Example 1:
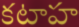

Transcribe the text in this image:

కటాహ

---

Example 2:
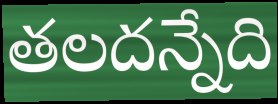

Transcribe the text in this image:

తలదన్నేది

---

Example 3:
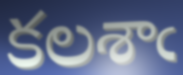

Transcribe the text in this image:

కలశాఁ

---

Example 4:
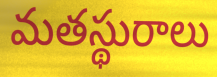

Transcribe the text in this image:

మతస్థురాలు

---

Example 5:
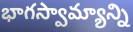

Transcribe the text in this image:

భాగస్వామ్యాన్ని